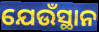
ଯେଉଁସ୍ଥାନ